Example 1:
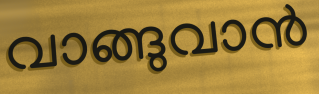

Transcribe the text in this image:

വാങ്ങുവാൻ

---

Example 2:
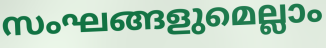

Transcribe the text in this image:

സംഘങ്ങളുമെല്ലാം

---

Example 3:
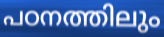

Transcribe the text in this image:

പഠനത്തിലും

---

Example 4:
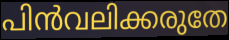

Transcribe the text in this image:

പിൻവലിക്കരുതേ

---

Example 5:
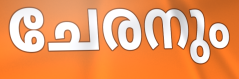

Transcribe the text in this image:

ചേരനും